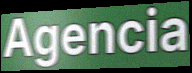
Agencia